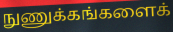
நுணுக்கங்களைக்